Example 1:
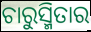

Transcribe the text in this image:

ଚାରୁସ୍ମିତାର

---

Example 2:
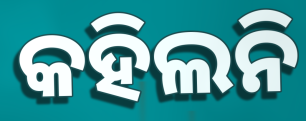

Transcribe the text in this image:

କହିଲନି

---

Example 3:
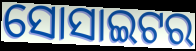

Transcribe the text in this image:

ସୋସାଇଟର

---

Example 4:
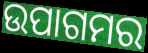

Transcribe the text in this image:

ଉପାଗମର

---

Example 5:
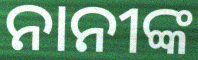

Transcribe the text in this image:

ନାନୀଙ୍କ